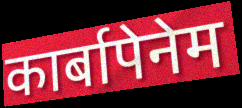
कार्बापेनेम